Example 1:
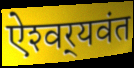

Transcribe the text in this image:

ऐश्वर्यवंत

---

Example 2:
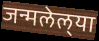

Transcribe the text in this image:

जन्मलेल्या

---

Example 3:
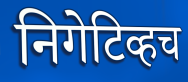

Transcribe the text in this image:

निगेटिव्हच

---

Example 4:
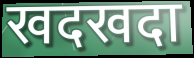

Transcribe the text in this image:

खदखदा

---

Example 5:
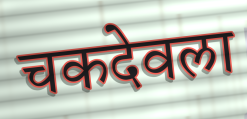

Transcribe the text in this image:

चकदेवला